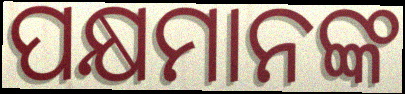
ପକ୍ଷମାନଙ୍କ